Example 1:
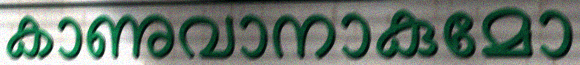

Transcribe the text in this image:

കാണുവാനാകുമോ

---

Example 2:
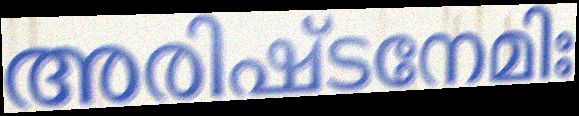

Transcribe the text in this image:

അരിഷ്ടനേമിഃ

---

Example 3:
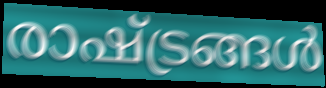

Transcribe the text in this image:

രാഷ്ട്രങ്ങൾ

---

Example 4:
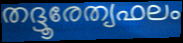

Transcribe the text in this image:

തദ്ദൂരേത്യഫലം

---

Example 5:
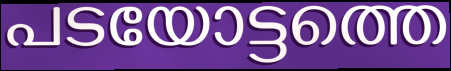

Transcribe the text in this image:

പടയോട്ടത്തെ